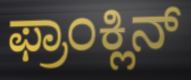
ಫ್ರಾಂಕ್ಲಿನ್